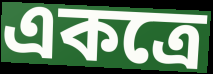
একত্ৰে